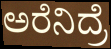
ಅರೆನಿದ್ರೆ